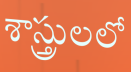
శాస్త్రులలో